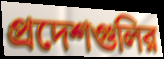
প্রদেশগুলির